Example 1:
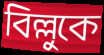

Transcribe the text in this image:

বিল্লুকে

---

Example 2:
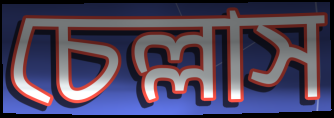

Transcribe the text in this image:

চেল্লাস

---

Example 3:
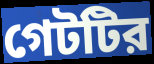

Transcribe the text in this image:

গেটটির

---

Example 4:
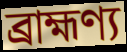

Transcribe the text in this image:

ব্রাহ্মণ্য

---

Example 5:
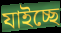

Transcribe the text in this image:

যাইচ্ছে